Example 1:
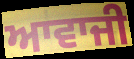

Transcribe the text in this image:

ਆਵਾਜੀ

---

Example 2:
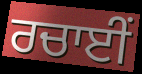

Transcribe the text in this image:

ਰਚਾਈਂ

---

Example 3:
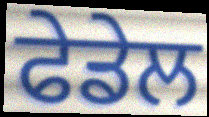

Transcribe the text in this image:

ਫੇਡੇਲ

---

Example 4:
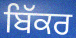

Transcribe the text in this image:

ਬਿੱਕਰ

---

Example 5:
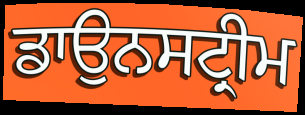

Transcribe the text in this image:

ਡਾਉਨਸਟ੍ਰੀਮ